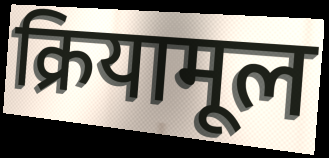
क्रियामूल